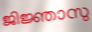
ജിജ്ഞാസു